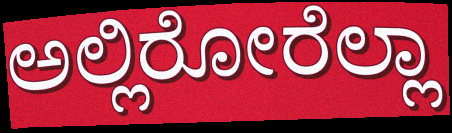
ಅಲ್ಲಿರೋರೆಲ್ಲಾ